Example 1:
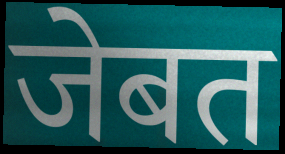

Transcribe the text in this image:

जेबत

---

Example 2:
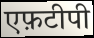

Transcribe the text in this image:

एफ़टीपी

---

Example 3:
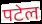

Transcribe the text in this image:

पटेल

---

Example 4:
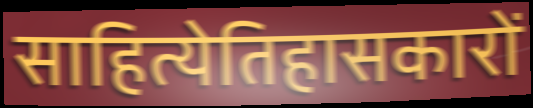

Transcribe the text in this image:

साहित्येतिहासकारों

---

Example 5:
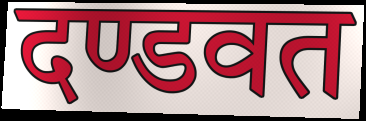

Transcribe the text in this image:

दण्‍डवत